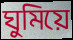
ঘুমিয়ে